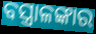
ବସ୍ତ୍ରାଳଙ୍କାର